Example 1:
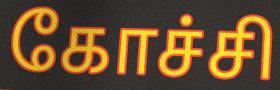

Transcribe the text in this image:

கோச்சி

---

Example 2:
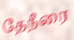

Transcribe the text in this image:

தேநீரை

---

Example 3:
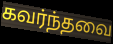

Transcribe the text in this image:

கவர்ந்தவை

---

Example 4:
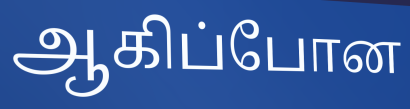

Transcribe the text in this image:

ஆகிப்போன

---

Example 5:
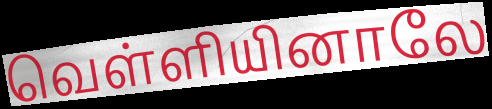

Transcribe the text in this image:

வெள்ளியினாலே